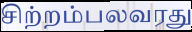
சிற்றம்பலவரது